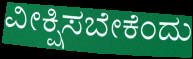
ವೀಕ್ಷಿಸಬೇಕೆಂದು